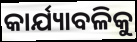
କାର୍ଯ୍ୟାବଳିକୁ